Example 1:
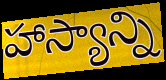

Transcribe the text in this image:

హాస్యాన్ని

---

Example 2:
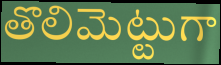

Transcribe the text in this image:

తొలిమెట్టుగా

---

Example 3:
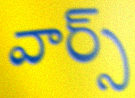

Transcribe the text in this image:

వార్స్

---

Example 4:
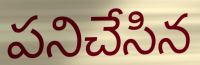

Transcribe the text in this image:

పనిచేసిన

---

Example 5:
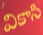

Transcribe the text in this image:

వికాసి